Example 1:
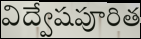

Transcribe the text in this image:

విద్వేషపూరిత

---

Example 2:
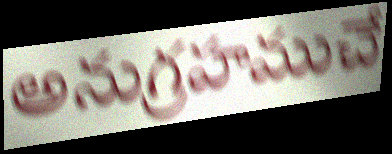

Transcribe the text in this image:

అనుగ్రహముచే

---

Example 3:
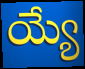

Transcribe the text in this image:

య్యే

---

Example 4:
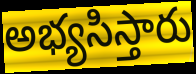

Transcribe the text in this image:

అభ్యసిస్తారు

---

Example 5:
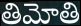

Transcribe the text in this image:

తిమోతి